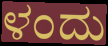
ಳಂದು